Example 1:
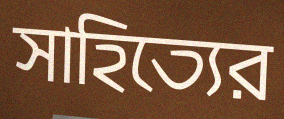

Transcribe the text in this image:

সাহিত্যের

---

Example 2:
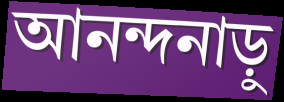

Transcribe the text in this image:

আনন্দনাড়ু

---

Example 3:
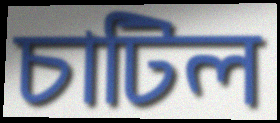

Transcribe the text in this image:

চাটিল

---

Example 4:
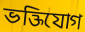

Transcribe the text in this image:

ভক্তিযোগ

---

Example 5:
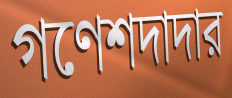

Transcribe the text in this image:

গণেশদাদার